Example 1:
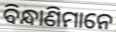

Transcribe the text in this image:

ବିନ୍ଧାଣିମାନେ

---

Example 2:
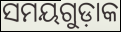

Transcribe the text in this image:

ସମୟଗୁଡ଼ାକ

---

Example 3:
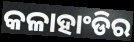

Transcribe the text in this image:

କଳାହାଂଡିର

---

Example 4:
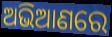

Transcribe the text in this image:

ଅଭିଆଣରେ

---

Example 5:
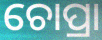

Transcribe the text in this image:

ଚୋପ୍ରା